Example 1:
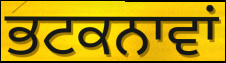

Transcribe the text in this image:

ਭਟਕਨਾਵਾਂ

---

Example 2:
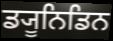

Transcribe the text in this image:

ਡ੍ਯੂਨਿਡਿਨ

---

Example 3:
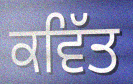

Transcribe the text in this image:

ਕਵਿੱਤ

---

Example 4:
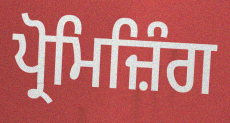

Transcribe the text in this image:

ਪ੍ਰੋਮਿਜ਼ਿੰਗ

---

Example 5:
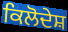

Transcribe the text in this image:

ਕਿਲੋਦੇਸ਼